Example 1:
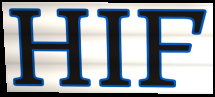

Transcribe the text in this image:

HIF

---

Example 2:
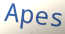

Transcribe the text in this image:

Apes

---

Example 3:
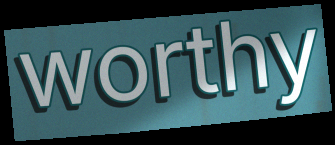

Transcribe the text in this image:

worthy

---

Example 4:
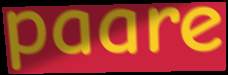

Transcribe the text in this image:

paare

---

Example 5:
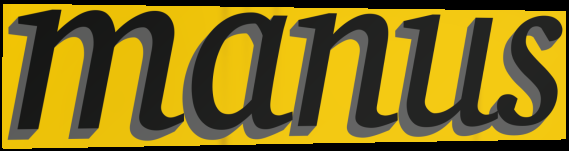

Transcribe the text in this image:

manus